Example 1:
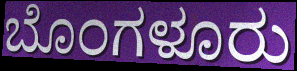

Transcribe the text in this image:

ಬೊಂಗಳೂರು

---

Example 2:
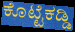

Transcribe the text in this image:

ಕೊಟ್ಟೆಕಡ್ಡಿ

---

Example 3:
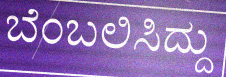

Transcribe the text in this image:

ಬೆಂಬಲಿಸಿದ್ದು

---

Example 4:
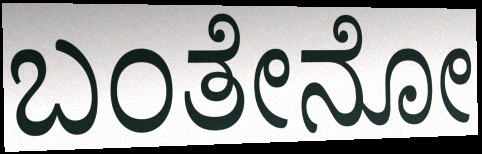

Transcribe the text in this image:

ಬಂತೇನೋ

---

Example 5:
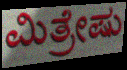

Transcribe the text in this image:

ಮಿತ್ರೇಷು